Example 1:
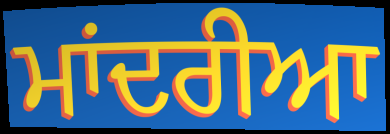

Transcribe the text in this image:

ਮਾਂਦਰੀਆ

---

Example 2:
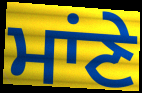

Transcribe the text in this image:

ਮਾਂਣੇ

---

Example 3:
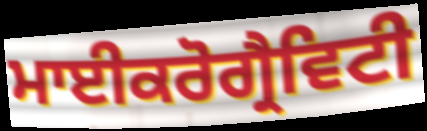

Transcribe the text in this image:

ਮਾਈਕਰੋਗ੍ਰੈਵਿਟੀ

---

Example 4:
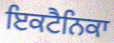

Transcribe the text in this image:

ਇਕਟੈਨਿਕਾ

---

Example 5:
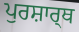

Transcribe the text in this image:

ਪੁਰਸ਼ਾਰ੍ਥ